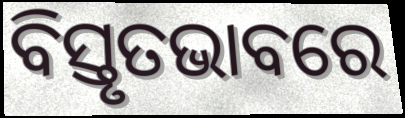
ବିସ୍ତୃତଭାବରେ